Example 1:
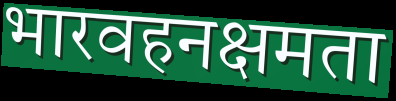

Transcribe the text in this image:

भारवहनक्षमता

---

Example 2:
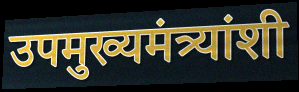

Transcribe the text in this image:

उपमुख्यमंत्र्यांशी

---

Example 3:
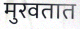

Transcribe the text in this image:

मुरवतात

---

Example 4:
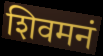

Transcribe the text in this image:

शिवमनं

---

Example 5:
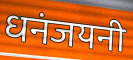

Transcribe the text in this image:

धनंजयनी